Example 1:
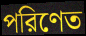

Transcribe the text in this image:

পরিণেত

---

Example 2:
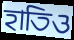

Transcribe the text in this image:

হাতিও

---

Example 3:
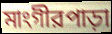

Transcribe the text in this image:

মাংগীরপাড়া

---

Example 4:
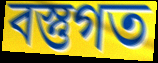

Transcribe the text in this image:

বস্তুগত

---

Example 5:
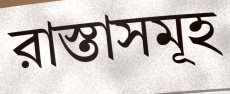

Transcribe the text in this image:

রাস্তাসমূহ